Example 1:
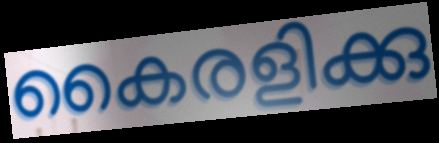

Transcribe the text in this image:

കൈരളിക്കു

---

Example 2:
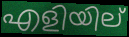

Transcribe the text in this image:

എളിയില്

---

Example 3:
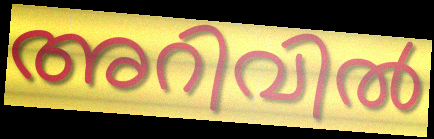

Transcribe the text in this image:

അറിവിൽ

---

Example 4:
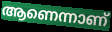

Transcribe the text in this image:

ആണെന്നാണ്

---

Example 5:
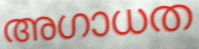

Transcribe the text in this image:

അഗാധത